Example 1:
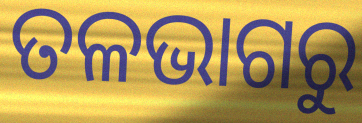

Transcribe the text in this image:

ତଳଭାଗରୁ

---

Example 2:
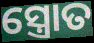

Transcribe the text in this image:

ସ୍ତ୍ରୋତ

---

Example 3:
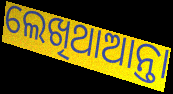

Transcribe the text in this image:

ଲେଖିଥାଆନ୍ତା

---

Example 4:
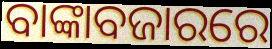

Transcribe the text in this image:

ବାଙ୍କାବଜାରରେ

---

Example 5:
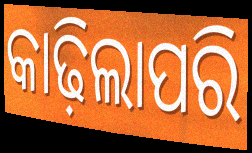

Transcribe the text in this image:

କାଢ଼ିଲାପରି